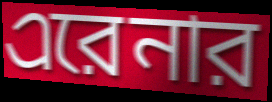
এরেনার